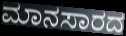
ಮಾನಸಾರದ